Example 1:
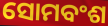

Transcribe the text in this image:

ସୋମବଂଶ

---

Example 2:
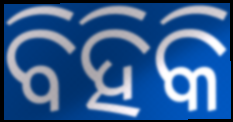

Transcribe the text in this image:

ବିହିକି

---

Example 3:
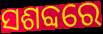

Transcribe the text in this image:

ସଶବ୍ଦରେ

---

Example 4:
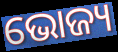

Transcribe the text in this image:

ଭୋଜ୍ୟ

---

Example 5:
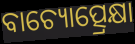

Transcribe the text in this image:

ବାଚ୍ୟୋତ୍ପ୍ରେକ୍ଷା